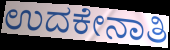
ಉದಕೇನಾತಿ